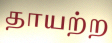
தாயற்ற